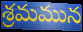
శ్రమమున